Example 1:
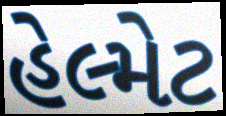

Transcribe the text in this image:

હેલ્મેટ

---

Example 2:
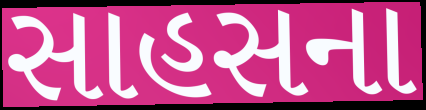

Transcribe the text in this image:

સાહસના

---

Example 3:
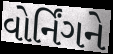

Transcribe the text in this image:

વોર્નિંગને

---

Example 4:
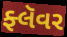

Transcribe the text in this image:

ફ્લૅવર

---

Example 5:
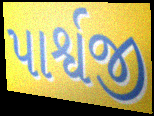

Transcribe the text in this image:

પાર્શ્વજી